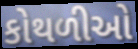
કોથળીઓ